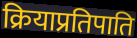
क्रियाप्रतिपाति